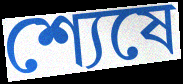
শ্যেষে